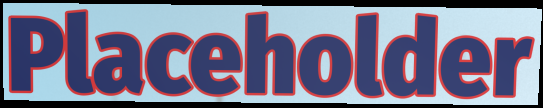
Placeholder